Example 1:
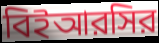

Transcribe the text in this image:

বিইআরসির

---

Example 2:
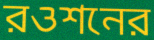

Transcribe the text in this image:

রওশনের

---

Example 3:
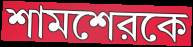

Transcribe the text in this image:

শামশেরকে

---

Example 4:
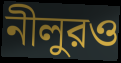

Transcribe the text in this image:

নীলুরও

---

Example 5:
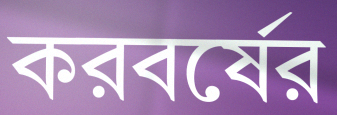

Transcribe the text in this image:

করবর্ষের